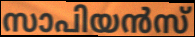
സാപിയൻസ്